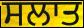
ਸਲਾਤ